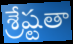
శ్రేష్టతా